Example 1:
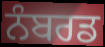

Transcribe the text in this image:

ਨੰਬਰਡ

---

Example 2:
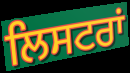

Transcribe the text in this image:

ਲਿਸਟਰਾਂ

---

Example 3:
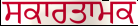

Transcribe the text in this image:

ਸਕਾਰਤਾਮਕ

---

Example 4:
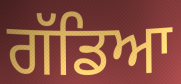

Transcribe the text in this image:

ਗੱਡਿਆ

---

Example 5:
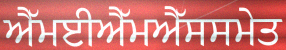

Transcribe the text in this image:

ਐੱਮਈਐੱਮਐੱਸਸਮੇਤ